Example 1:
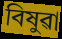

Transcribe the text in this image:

বিষুৱা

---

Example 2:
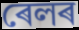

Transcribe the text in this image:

ৰেলৰ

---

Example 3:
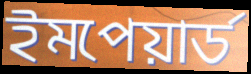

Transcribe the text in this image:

ইমপেয়াৰ্ড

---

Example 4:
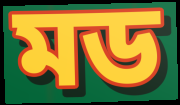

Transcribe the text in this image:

মড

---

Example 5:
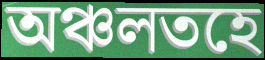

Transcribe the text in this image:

অঞ্চলতহে